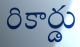
రికార్డు